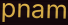
pnam